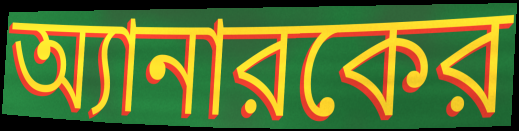
অ্যানারকের